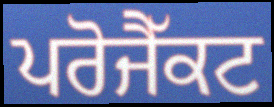
ਪਰੋਜੈੱਕਟ